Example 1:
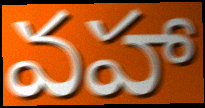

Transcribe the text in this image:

వహా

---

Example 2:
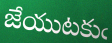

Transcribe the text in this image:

జేయుటకుఁ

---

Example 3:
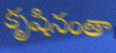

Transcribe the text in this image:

కృషినంతా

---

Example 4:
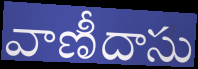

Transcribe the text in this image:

వాణీదాసు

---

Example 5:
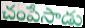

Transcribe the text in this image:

చంపేసాడు